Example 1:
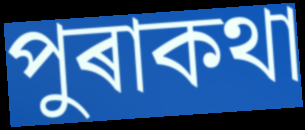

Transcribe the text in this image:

পুৰাকথা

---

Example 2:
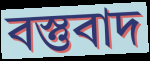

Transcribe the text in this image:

বস্তুবাদ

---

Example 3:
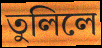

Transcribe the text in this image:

তুলিলে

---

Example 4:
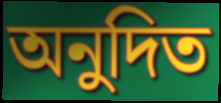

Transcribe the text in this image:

অনুদিত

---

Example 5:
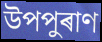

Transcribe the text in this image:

উপপুৰাণ